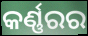
କର୍ଣ୍ଣରର